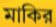
মাকির